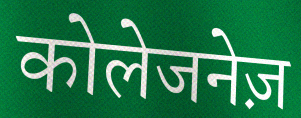
कोलेजनेज़